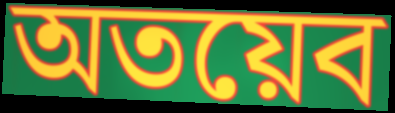
অতয়েব